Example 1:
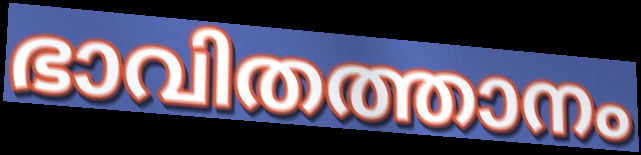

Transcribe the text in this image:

ഭാവിതത്താനം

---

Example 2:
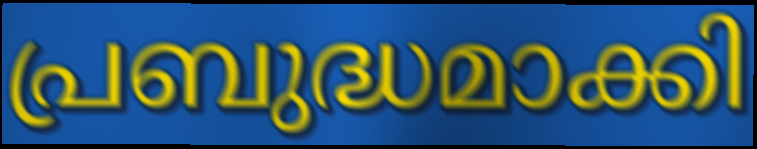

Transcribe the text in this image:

പ്രബുദ്ധമാക്കി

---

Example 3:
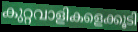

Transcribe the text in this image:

കുറ്റവാളികളെക്കൂടി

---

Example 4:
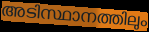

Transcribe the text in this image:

അടിസ്ഥാനത്തിലും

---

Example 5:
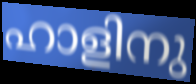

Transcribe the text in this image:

ഹാളിനു